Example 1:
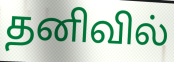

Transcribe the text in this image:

தனிவில்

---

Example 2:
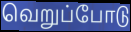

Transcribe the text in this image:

வெறுப்போடு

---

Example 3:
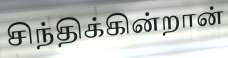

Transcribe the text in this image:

சிந்திக்கின்றான்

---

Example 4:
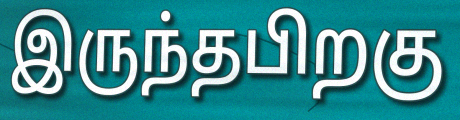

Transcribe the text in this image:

இருந்தபிறகு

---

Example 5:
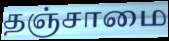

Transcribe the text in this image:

தஞ்சாமை